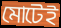
মোটেই